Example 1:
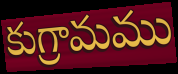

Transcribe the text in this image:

కుగ్రామము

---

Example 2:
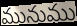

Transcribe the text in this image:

మునుము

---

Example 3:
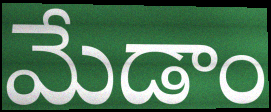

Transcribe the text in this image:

మేడాం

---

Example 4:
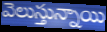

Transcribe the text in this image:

వెలుస్తున్నాయి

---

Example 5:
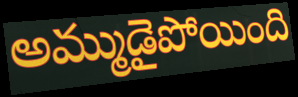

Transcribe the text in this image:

అమ్ముడైపోయింది